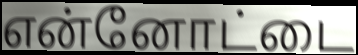
என்னோட்டை